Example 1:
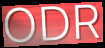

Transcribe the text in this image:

ODR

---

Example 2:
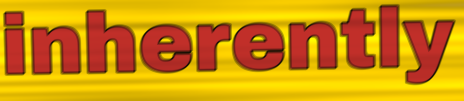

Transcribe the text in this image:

inherently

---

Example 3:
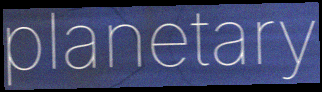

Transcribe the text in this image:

planetary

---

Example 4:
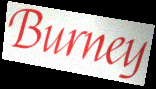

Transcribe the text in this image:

Burney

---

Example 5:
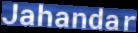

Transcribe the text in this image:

Jahandar